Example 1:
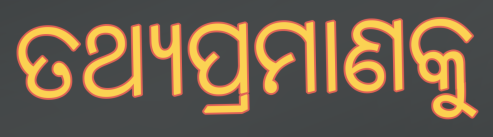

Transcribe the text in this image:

ତଥ୍ୟପ୍ରମାଣକୁ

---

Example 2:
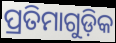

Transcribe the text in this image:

ପ୍ରତିମାଗୁଡ଼ିକ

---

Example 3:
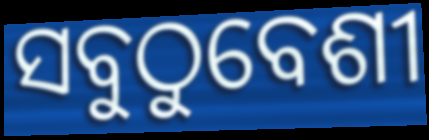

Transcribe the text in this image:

ସବୁଠୁବେଶୀ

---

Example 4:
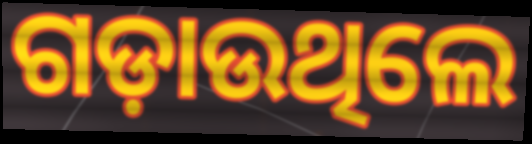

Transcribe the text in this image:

ଗଡ଼ାଉଥିଲେ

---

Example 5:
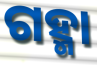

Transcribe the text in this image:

ଗହ୍ମା